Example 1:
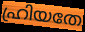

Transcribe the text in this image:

ഹ്രിയതേ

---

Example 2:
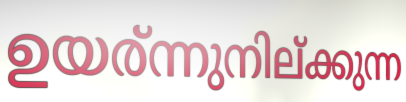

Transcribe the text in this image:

ഉയര്ന്നുനില്ക്കുന്ന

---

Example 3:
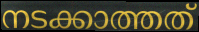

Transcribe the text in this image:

നടക്കാത്തത്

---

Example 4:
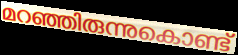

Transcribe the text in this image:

മറഞ്ഞിരുന്നുകൊണ്ട്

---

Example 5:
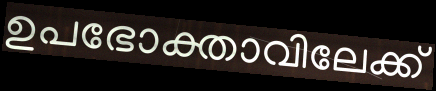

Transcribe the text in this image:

ഉപഭോക്താവിലേക്ക്